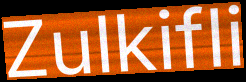
Zulkifli